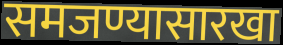
समजण्यासारखा